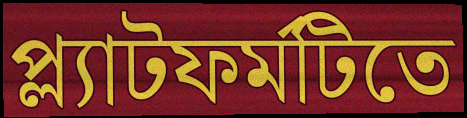
প্ল্যাটফর্মটিতে